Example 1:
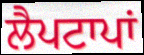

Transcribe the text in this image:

ਲੈਪਟਾਪਾਂ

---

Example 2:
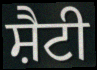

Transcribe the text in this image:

ਸ਼ੈਟੀ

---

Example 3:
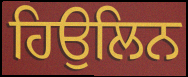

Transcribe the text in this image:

ਹਿਉਲਿਨ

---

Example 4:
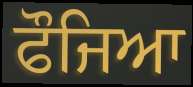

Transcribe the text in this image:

ਫੌਜਿਆ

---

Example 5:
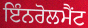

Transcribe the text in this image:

ਇੰਨਰੋਲਮੈਂਟ